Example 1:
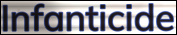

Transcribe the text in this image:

Infanticide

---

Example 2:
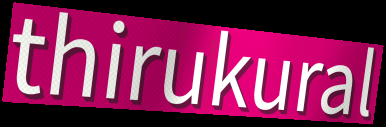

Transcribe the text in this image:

thirukural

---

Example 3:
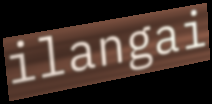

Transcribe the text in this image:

ilangai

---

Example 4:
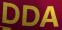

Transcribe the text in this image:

DDA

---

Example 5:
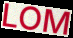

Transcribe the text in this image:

LOM